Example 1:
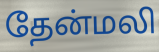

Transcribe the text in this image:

தேன்மலி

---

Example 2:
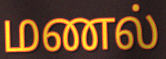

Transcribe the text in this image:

மணல்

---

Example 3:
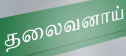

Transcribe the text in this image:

தலைவனாய்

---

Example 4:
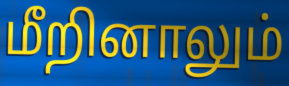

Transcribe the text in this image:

மீறினாலும்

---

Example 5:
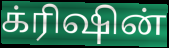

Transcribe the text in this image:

க்ரிஷின்